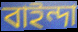
বাইন্দা